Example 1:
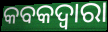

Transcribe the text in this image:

କବକଦ୍ୱାରା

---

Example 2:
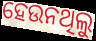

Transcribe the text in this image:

ହେଉନଥିଲୁ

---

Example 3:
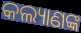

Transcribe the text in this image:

କଲ୍ୟାଣଙ୍କ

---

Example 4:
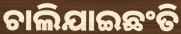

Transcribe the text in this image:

ଚାଲିଯାଇଛଂତି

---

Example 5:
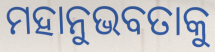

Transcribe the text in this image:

ମହାନୁଭବତାକୁ